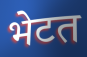
भेटत